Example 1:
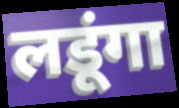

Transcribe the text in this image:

लडूंगा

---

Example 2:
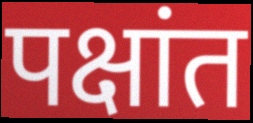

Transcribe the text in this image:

पक्षांत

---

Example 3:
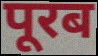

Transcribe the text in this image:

पूरब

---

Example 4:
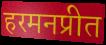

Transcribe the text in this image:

हरमनप्रीत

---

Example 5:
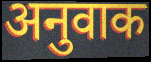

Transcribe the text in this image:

अनुवाक